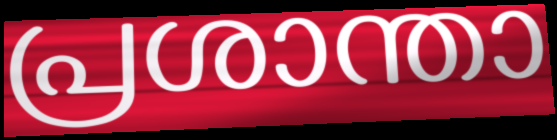
പ്രശാന്താ